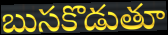
బుసకొడుతూ